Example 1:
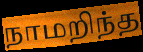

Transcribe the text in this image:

நாமறிந்த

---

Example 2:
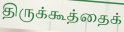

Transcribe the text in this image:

திருக்கூத்தைக்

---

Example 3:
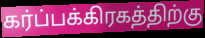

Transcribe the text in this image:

கர்ப்பக்கிரகத்திற்கு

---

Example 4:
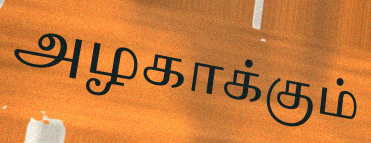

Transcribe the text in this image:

அழகாக்கும்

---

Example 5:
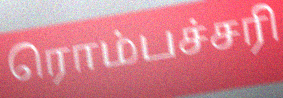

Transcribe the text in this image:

ரொம்பச்சரி